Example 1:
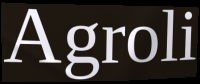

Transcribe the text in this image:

Agroli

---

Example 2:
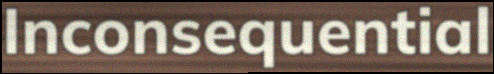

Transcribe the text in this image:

Inconsequential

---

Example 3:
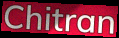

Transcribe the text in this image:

Chitran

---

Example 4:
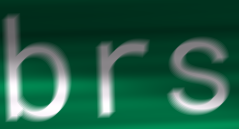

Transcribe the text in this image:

brs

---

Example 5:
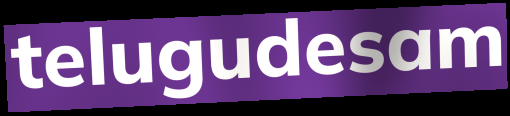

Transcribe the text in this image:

telugudesam